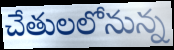
చేతులలోనున్న